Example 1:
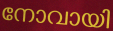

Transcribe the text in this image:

നോവായി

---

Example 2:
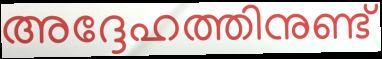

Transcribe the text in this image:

അദ്ദേഹത്തിനുണ്ട്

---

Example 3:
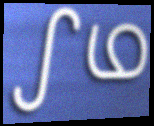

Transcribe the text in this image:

ഽഥ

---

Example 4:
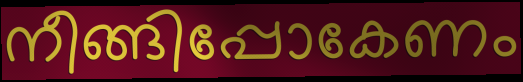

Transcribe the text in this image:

നീങ്ങിപ്പോകേണം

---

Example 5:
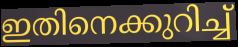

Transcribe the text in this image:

ഇതിനെക്കുറിച്ച്